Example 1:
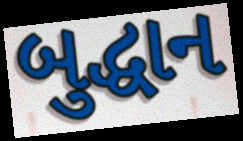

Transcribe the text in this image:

બુદ્ધાન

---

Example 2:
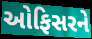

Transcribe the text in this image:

ઓફિસરને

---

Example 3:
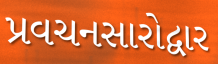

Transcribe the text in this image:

પ્રવચનસારોદ્વાર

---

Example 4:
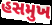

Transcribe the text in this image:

હસમુખ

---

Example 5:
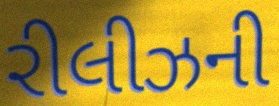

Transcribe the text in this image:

રીલીઝની